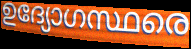
ഉദ്യോഗസ്ഥരെ